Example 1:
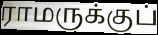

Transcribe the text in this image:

ராமருக்குப்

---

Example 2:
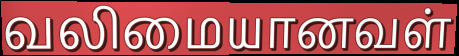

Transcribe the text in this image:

வலிமையானவள்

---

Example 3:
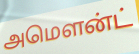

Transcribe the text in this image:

அமௌன்ட்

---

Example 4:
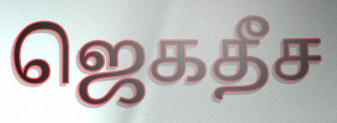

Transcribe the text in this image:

ஜெகதீச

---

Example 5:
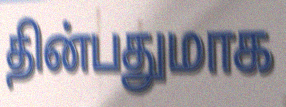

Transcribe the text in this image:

தின்பதுமாக